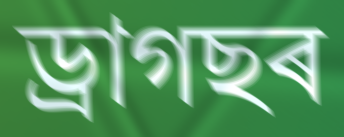
ড্ৰাগছৰ